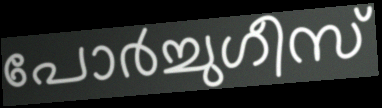
പോർച്ചുഗീസ്